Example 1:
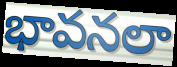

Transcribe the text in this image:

భావనలా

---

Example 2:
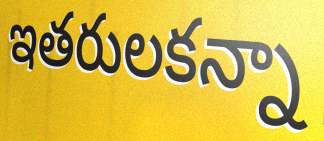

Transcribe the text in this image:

ఇతరులకన్నా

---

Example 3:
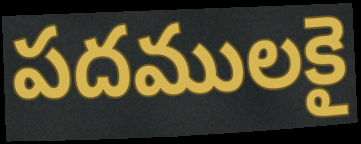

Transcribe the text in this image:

పదములకై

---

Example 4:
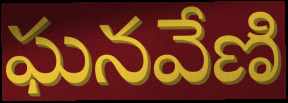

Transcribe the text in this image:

ఘనవేణి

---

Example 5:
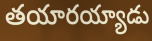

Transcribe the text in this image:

తయారయ్యాడు